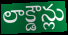
లాక్డౌన్లు